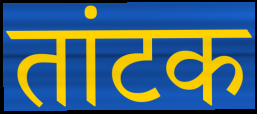
तांटक